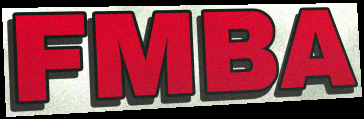
FMBA